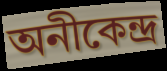
অনীকেন্দ্র